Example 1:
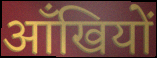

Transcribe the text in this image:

आँखियों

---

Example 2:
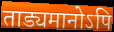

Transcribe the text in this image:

ताड्यमानोऽपि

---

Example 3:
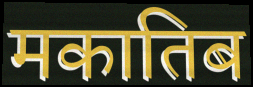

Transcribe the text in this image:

मकातिब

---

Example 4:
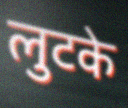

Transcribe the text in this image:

लुटके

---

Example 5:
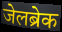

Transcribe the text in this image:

जेलब्रेक